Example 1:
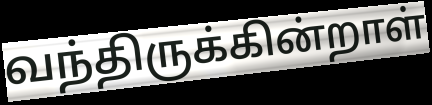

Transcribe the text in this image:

வந்திருக்கின்றாள்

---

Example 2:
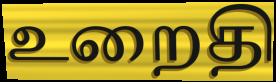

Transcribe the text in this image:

உறைதி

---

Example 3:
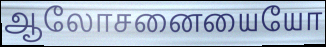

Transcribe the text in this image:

ஆலோசனையையோ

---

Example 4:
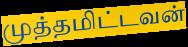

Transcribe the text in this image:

முத்தமிட்டவன்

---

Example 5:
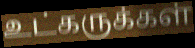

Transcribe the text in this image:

உட்கருக்கள்